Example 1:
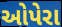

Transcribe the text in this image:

ઓપેરા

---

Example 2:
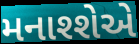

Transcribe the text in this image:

મનાશ્શેએ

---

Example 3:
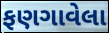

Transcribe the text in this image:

ફણગાવેલા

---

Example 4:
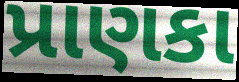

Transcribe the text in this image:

પ્રાણકા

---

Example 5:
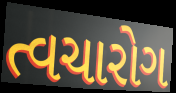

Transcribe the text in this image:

ત્વચારોગ